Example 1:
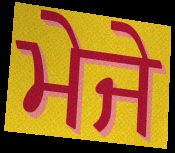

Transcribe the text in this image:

ਮੇਜੇ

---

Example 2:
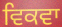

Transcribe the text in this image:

ਵਿਕਵਾ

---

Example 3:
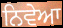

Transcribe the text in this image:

ਨਿਵੇਆ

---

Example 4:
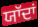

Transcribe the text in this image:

ਯਾੱਦਾਂ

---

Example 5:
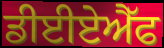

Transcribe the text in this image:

ਡੀਈਏਐੱਫ